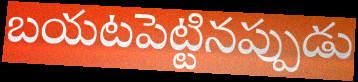
బయటపెట్టినప్పుడు